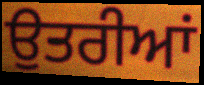
ਉਤਰੀਆਂ